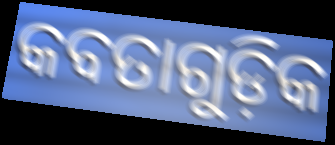
କବତାଗୁଡ଼ିକ